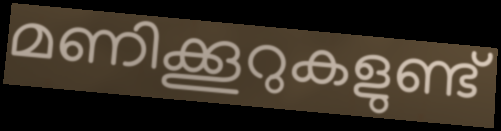
മണിക്കൂറുകളുണ്ട്